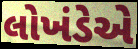
લોખંડેએ